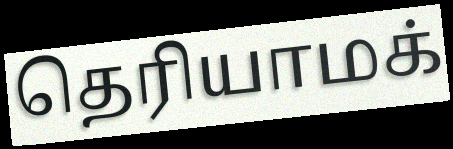
தெரியாமக்